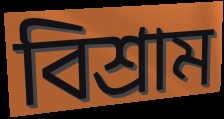
বিশ্রাম